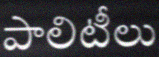
పాలిటీలు